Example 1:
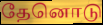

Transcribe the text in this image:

தேனொடு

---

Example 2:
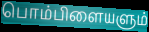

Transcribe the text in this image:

பொம்பிளையளும்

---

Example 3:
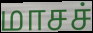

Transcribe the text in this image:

மாசச்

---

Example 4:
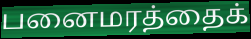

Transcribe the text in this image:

பனைமரத்தைக்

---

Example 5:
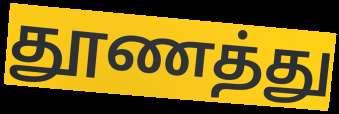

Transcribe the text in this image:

தூணத்து